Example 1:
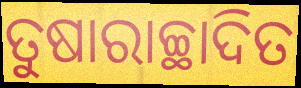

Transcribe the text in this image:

ତୁଷାରାଚ୍ଛାଦିତ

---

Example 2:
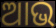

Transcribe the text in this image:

ଆଭ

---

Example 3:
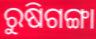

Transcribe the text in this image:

ରୁଷିଗଙ୍ଗା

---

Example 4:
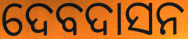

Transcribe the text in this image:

ଦେବଦାସନ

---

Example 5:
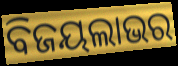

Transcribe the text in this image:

ବିଜୟଲାଭର